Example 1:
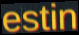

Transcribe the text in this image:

estin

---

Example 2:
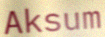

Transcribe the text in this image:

Aksum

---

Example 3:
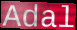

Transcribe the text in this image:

Adal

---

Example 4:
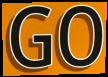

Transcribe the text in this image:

GO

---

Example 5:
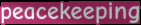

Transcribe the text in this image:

peacekeeping